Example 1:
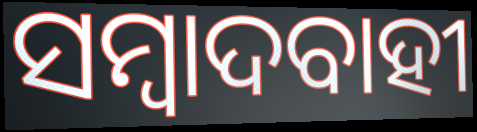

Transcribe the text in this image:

ସମ୍ବାଦବାହୀ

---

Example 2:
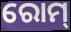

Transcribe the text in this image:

ରୋମ୍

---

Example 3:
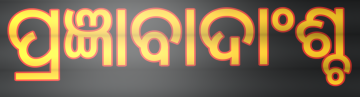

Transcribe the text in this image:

ପ୍ରଜ୍ଞାବାଦାଂଶ୍ଚ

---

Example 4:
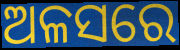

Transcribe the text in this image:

ଅଳସରେ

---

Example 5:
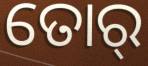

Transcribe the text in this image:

ତୋର୍